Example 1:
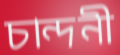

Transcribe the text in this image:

চান্দনী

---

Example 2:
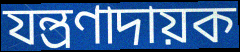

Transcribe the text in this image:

যন্ত্রণাদায়ক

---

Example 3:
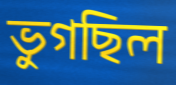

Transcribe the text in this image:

ভুগছিল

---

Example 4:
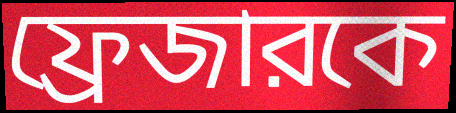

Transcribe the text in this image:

ফ্রেজারকে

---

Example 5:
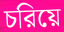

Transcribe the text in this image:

চরিয়ে